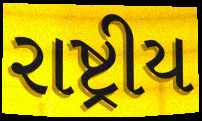
રાષ્ટ્રીય